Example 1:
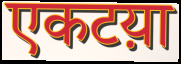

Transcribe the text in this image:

एकटय़ा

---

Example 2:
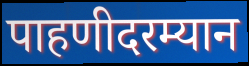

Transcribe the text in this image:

पाहणीदरम्यान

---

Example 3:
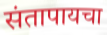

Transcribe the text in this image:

संतापायचा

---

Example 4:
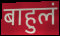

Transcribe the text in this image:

बाहुलं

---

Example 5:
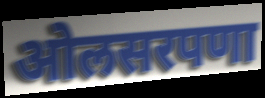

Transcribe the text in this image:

ओलसरपणा